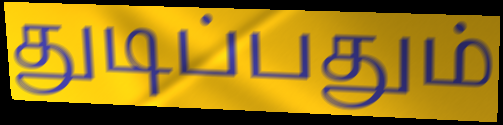
துடிப்பதும்